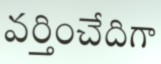
వర్తించేదిగా